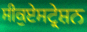
ਸੀਕੁਏਸਟ੍ਰੇਸ਼ਨ